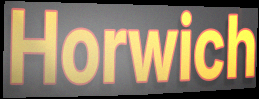
Horwich